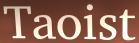
Taoist